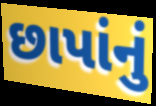
છાપાંનું